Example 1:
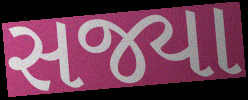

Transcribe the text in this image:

સજ્યા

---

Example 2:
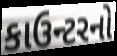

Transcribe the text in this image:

કાઉન્ટરનો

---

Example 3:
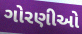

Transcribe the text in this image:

ગોરણીઓ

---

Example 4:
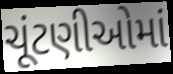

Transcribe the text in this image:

ચૂંટણીઓમાં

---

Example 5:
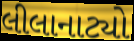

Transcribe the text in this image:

લીલાનાટ્યો